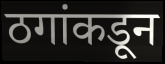
ठगांकडून